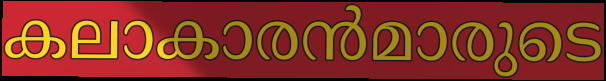
കലാകാരൻമാരുടെ